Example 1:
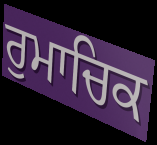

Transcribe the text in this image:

ਰੁਮਾਚਿਕ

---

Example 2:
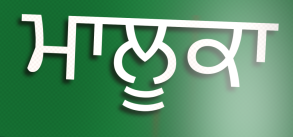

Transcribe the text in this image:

ਮਾਲੂਕਾ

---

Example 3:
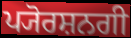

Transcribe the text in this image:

ਪ੍ਯੋਰਸ਼ਨਗੀ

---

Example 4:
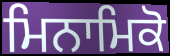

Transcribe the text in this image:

ਮਿਨਾਮਿਕੋ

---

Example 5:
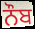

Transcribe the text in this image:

ਨੌਬ